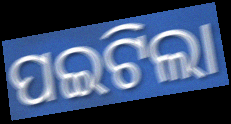
ପଇଟିଲା